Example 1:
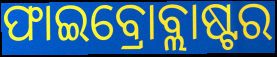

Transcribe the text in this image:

ଫାଇବ୍ରୋବ୍ଲାଷ୍ଟର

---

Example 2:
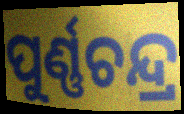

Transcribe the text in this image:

ପୁର୍ଣ୍ଣଚନ୍ଦ୍ର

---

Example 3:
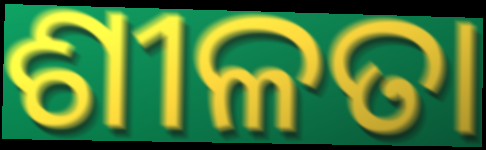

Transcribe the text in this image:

ଶୀଳତା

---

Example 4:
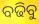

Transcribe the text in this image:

ବଢିବୁ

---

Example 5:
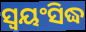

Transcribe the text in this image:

ସ୍ୱୟଂସିଦ୍ଧ